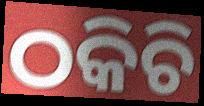
ଠକିଚି